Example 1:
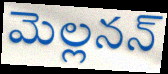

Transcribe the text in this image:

మెల్లనన్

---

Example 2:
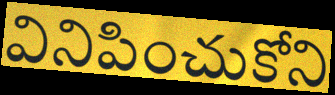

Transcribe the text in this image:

వినిపించుకోని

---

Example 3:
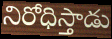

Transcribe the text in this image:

నిరోధిస్తాడు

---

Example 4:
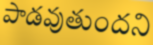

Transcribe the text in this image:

పాడవుతుందని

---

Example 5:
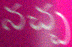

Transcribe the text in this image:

నచ్చ